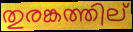
തുരങ്കത്തില്